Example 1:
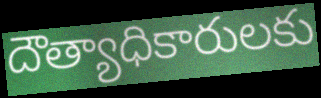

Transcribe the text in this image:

దౌత్యాధికారులకు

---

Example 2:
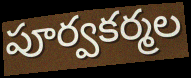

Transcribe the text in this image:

పూర్వకర్మల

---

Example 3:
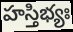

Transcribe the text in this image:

హస్తిభ్యః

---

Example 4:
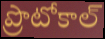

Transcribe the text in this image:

ప్రొటోకాల్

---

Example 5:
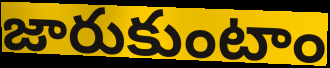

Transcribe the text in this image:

జారుకుంటాం